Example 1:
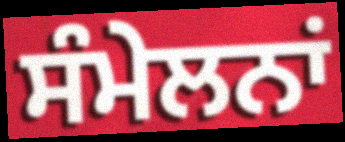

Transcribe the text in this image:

ਸੰਮੇਲਨਾਂ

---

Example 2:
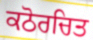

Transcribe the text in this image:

ਕਠੋਰਚਿਤ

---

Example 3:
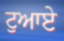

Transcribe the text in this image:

ਟੁਆਏ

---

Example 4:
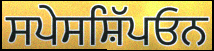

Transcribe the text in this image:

ਸਪੇਸਸ਼ਿੱਪਓਨ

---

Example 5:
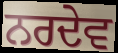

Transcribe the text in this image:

ਨਰਦੇਵ